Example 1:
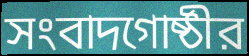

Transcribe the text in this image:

সংবাদগোষ্ঠীর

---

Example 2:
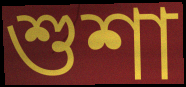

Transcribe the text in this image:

শুশা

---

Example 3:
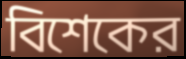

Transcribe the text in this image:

বিশেকের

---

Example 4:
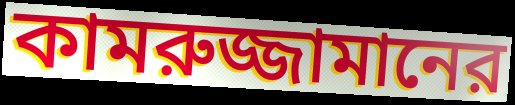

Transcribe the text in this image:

কামরুজ্জামানের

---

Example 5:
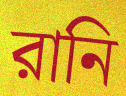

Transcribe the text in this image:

রানি